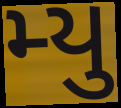
મ્યુ